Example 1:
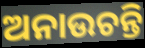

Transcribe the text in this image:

ଅନାଉଚନ୍ତି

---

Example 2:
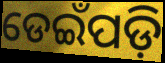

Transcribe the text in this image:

ଡେଇଁପଡ଼ି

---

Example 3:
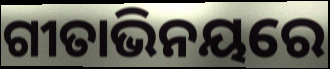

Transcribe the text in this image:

ଗୀତାଭିନୟରେ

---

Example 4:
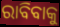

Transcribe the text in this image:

ରାବିବାକୁ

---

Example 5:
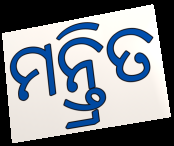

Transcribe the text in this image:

ମନ୍ତ୍ରିତ